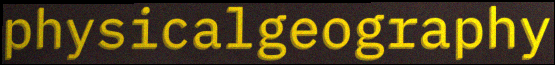
physicalgeography